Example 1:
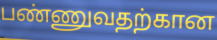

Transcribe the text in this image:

பண்ணுவதற்கான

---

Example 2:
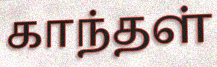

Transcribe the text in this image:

காந்தள்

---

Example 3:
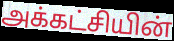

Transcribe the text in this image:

அக்கட்சியின்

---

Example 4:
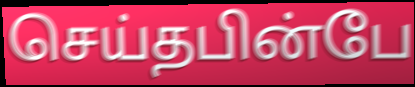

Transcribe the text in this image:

செய்தபின்பே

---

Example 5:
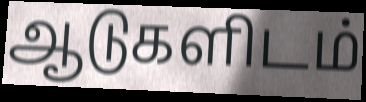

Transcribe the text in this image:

ஆடுகளிடம்